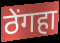
ठेंगहा